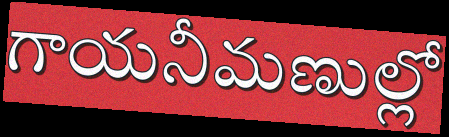
గాయనీమణుల్లో